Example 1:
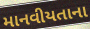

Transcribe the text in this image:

માનવીયતાના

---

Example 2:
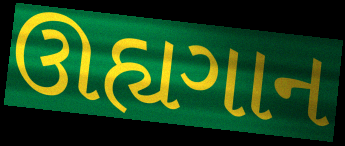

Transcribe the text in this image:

ઊહ્યગાન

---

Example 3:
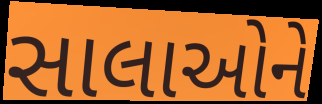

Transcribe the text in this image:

સાલાઓને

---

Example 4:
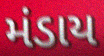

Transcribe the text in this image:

મંડાય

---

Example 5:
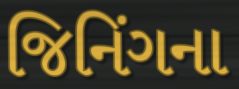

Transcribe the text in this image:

જિનિંગના